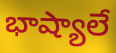
భాష్యాలే